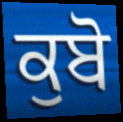
ਕੁਬੋ